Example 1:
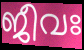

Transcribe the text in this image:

ജീവഃ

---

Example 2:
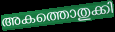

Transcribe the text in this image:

അകത്തൊതുക്കി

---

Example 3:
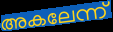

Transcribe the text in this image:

അകലേന്ന്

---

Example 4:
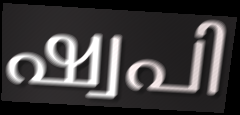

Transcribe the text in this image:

ഷ്വപി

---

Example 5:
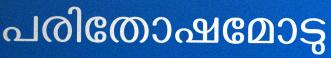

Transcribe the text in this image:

പരിതോഷമോടു